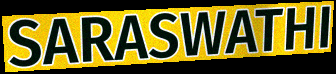
SARASWATHI